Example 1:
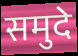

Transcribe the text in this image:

समुदे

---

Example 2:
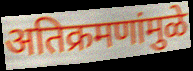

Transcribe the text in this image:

अतिक्रमणांमुळे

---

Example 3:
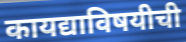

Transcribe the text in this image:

कायद्याविषयीची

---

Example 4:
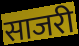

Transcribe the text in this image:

साजरी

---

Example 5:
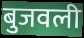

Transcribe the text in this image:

बुजवली